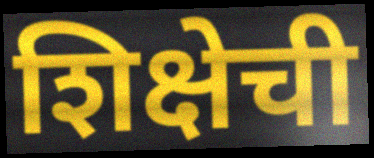
शिक्षेची